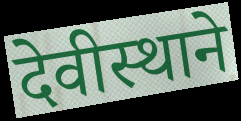
देवीस्थाने